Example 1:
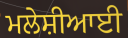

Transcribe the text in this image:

ਮਲੇਸ਼ੀਆਈ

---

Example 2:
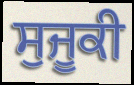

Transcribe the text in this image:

ਸੁਜੂਕੀ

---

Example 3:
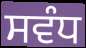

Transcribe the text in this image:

ਸਵੰਧ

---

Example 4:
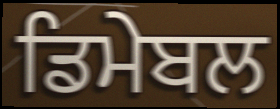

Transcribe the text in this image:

ਡਿਮੇਬਲ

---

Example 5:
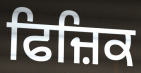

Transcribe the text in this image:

ਫਿਜ਼ਿਕ